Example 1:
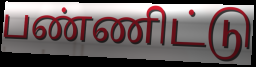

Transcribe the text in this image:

பண்ணிட்டு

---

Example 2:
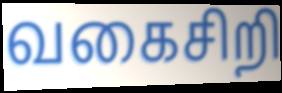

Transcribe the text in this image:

வகைசிறி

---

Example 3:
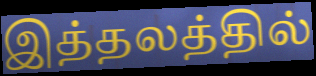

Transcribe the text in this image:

இத்தலத்தில்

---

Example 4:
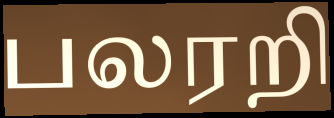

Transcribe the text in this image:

பலரறி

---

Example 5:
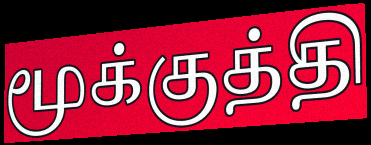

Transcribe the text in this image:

மூக்குத்தி